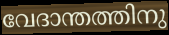
വേദാന്തത്തിനു